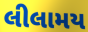
લીલામય